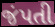
જંપતી